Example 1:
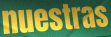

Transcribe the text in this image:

nuestras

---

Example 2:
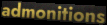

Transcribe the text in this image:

admonitions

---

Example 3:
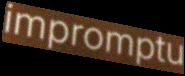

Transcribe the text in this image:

impromptu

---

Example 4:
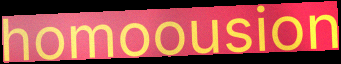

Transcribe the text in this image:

homoousion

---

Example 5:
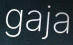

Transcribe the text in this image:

gaja